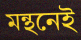
মন্থনেই